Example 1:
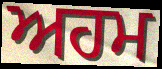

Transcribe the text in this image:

ਅਹਮ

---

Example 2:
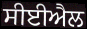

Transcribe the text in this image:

ਸੀਈਐਲ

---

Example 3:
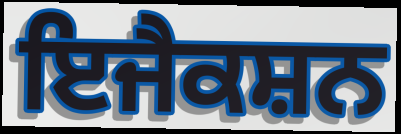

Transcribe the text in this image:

ਇਜੈਕਸ਼ਨ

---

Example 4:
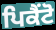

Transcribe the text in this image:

ਪਿਕੈਂਟੋ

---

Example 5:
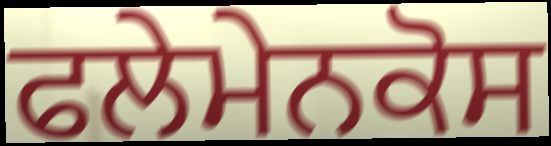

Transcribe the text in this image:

ਫਲੇਮੇਨਕੋਸ